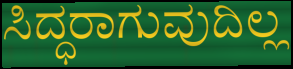
ಸಿದ್ಧರಾಗುವುದಿಲ್ಲ